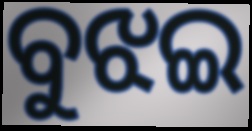
ବୁଝଇ